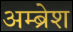
अम्ब्रेश